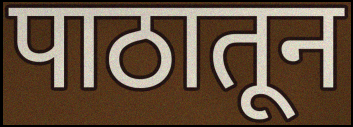
पाठातून